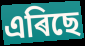
এৰিছে